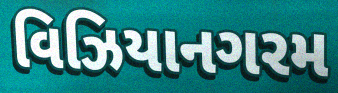
વિઝિયાનગરમ